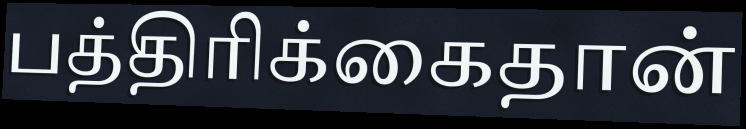
பத்திரிக்கைதான்